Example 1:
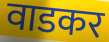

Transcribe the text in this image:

वाडकर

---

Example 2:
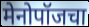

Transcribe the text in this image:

मेनोपॉजचा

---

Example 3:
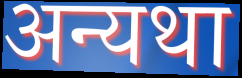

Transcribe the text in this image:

अन्यथा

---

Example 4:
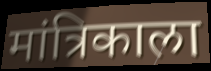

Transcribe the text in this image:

मांत्रिकाला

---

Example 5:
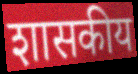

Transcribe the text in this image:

शासकीय